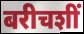
बरीचशीं